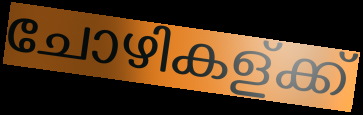
ചോഴികള്ക്ക്